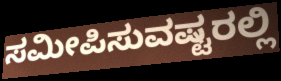
ಸಮೀಪಿಸುವಷ್ಟರಲ್ಲಿ